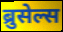
ब्रुसेल्स